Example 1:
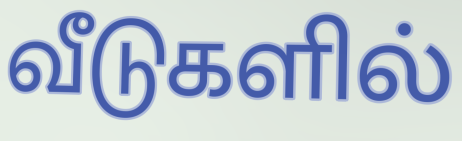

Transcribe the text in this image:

வீடுகளில்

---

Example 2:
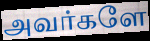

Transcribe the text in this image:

அவர்களே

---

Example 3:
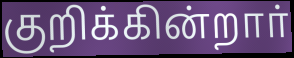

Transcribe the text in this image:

குறிக்கின்றார்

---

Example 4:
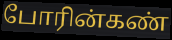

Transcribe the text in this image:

போரின்கண்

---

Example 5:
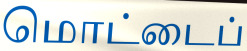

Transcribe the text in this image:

மொட்டைப்